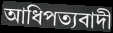
আধিপত্যবাদী